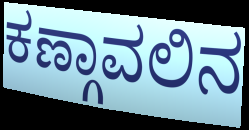
ಕಣ್ಗಾವಲಿನ